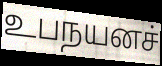
உபநயனச்